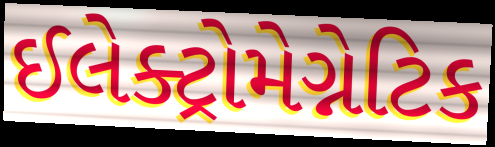
ઈલેક્ટ્રોમેગ્નેટિક